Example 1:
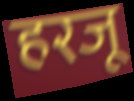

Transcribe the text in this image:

हरजू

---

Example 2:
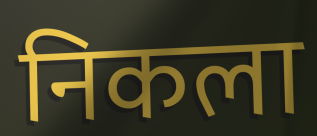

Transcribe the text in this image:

निकला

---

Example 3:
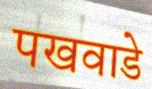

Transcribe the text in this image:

पखवाडे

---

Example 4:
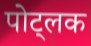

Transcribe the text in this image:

पोट्लक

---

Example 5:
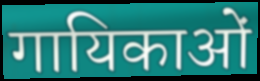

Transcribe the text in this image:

गायिकाओं